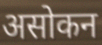
असोकन